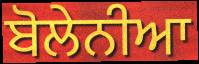
ਬੋਲੇਨੀਆ